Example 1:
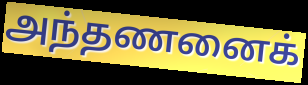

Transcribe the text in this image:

அந்தணனைக்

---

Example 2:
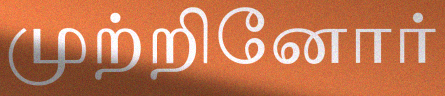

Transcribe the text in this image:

முற்றினோர்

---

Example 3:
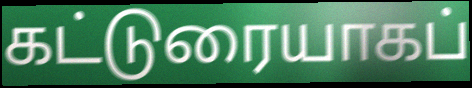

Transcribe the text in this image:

கட்டுரையாகப்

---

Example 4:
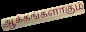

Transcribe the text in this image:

ஆக்கங்களாகும்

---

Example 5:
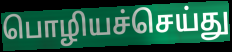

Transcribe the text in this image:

பொழியச்செய்து